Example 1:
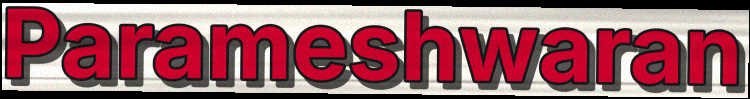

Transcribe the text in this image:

Parameshwaran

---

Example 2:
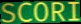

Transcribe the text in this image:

SCORI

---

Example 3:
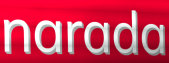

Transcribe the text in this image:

narada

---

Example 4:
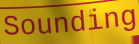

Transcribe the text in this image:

Sounding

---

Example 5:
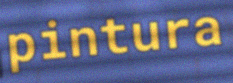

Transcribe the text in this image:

pintura